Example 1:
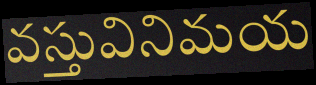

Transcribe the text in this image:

వస్తువినిమయ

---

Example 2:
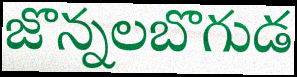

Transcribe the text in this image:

జొన్నలబొగుడ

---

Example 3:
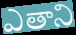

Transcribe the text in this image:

ఎతాని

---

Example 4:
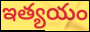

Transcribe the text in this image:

ఇత్యయం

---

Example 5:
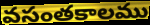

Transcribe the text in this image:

వసంతకాలము